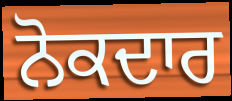
ਨੋਕਦਾਰ